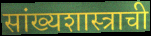
सांख्यशास्त्राची